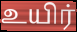
உயிர்